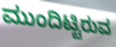
ಮುಂದಿಟ್ಟಿರುವ